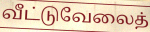
வீட்டுவேலைத்